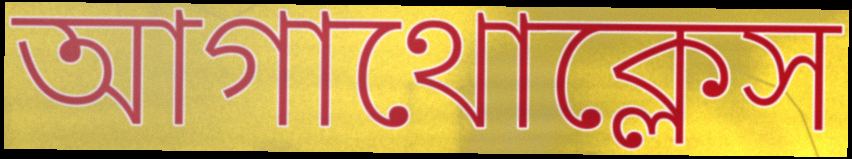
আগাথোক্লেস